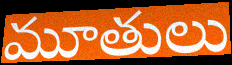
మూతులు